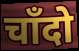
चाँदो